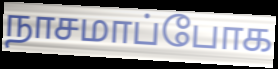
நாசமாப்போக